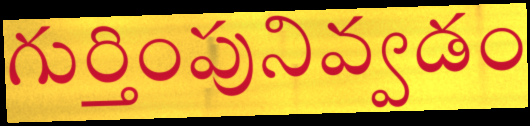
గుర్తింపునివ్వడం